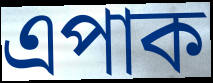
এপাক